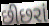
છીછરાં